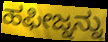
ಹಫೀಜ್ನನ್ನು